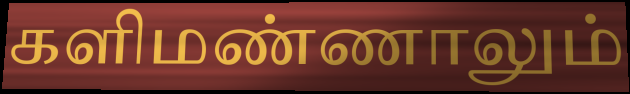
களிமண்ணாலும்